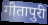
गीतापुरी